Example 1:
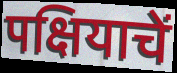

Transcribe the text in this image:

पक्षियाचें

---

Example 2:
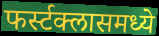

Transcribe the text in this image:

फर्स्टक्लासमध्ये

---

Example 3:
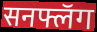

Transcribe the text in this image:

सनफ्लॅग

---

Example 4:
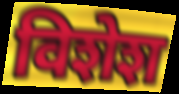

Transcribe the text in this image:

विशेश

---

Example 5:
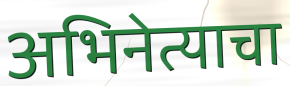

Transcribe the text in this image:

अभिनेत्याचा